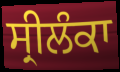
ਸ੍ਰੀਲੰਕਾ